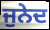
ਜੁਨੇਦ